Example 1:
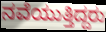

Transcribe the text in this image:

ನವೆಯುತ್ತಿದ್ದರು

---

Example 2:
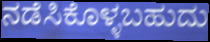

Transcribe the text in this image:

ನಡೆಸಿಕೊಳ್ಳಬಹುದು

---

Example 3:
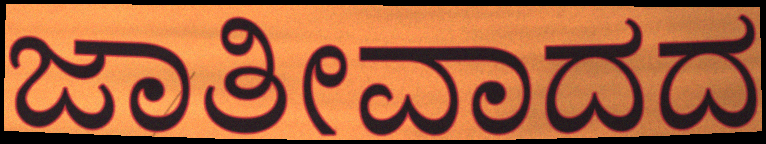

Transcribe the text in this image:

ಜಾತೀವಾದದ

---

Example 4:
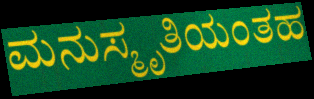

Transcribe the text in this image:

ಮನುಸ್ಮೃತಿಯಂತಹ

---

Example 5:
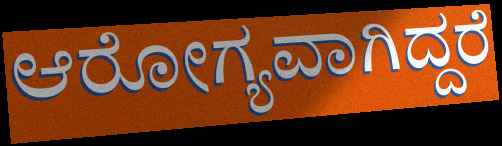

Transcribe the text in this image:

ಆರೋಗ್ಯವಾಗಿದ್ದರೆ